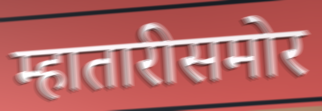
म्हातारीसमोर